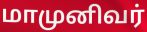
மாமுனிவர்